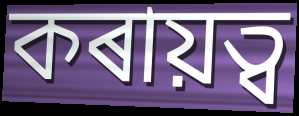
কৰায়ত্ব